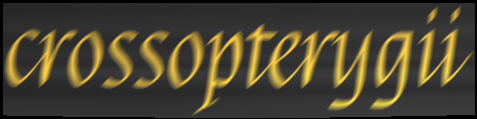
crossopterygii